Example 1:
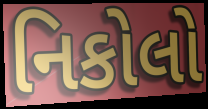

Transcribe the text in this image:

નિકોલો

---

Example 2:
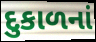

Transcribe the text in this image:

દુકાળનાં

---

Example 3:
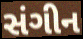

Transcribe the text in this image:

સંગીન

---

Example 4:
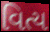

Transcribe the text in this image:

વિત્ય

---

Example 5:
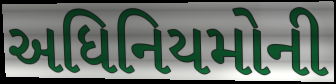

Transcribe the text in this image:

અધિનિયમોની